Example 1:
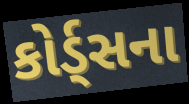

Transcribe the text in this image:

કોર્ડ્સના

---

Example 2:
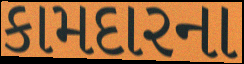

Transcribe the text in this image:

કામદારના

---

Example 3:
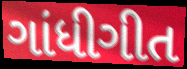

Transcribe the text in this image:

ગાંધીગીત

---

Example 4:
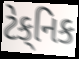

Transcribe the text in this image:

ટેક્‌નિક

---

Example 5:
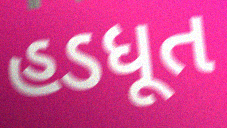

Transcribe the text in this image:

હડધૂત